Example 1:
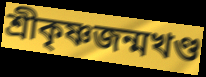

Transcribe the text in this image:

শ্রীকৃষ্ণজন্মখণ্ড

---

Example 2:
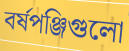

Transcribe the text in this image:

বর্ষপঞ্জিগুলো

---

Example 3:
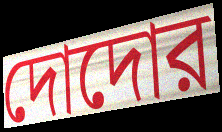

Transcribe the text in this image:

দোদোর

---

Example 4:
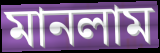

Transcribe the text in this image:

মানলাম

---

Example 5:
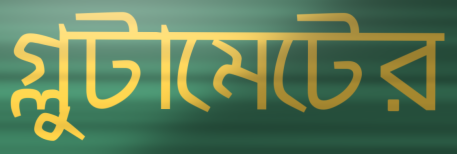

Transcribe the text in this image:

গ্লুটামেটের